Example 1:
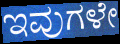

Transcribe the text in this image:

ಇವುಗಳೇ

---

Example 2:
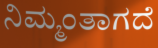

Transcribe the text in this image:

ನಿಮ್ಮಂತಾಗದೆ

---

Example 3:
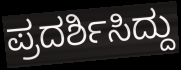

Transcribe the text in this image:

ಪ್ರದರ್ಶಿಸಿದ್ದು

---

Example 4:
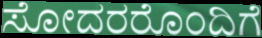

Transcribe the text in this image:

ಸೋದರರೊಂದಿಗೆ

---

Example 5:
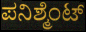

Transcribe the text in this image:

ಪನಿಶ್ಮೆಂಟ್